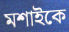
মশাইকে